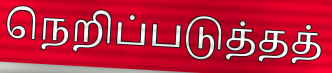
நெறிப்படுத்தத்